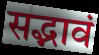
सद्भावं